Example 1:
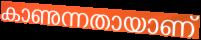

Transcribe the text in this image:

കാണുന്നതായാണ്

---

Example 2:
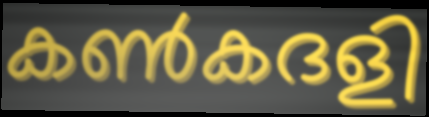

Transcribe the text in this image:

കൺകദളി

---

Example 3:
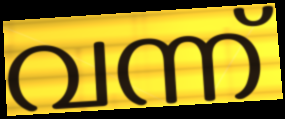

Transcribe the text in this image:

വന്ന്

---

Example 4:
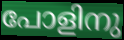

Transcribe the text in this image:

പോളിനു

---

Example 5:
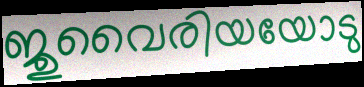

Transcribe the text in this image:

ജുവൈരിയയോടു